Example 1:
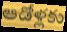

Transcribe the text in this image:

ఆడోళ్లకు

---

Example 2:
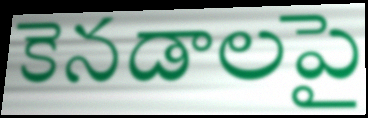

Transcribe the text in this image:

కెనడాలపై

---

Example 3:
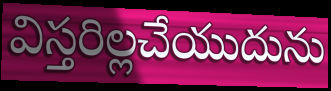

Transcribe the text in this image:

విస్తరిల్లచేయుదును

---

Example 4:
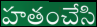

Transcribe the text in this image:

హతంచేసి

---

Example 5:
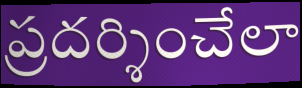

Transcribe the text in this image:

ప్రదర్శించేలా